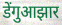
डेंगुआझार